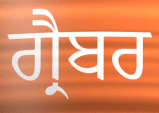
ਗ੍ਰੈਬਰ